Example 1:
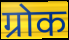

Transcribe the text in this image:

ग्रोक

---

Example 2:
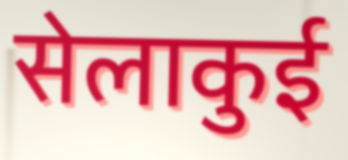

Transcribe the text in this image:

सेलाकुई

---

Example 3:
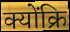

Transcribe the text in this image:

क्योंक्रि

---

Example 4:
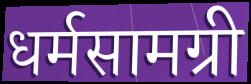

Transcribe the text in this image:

धर्मसामग्री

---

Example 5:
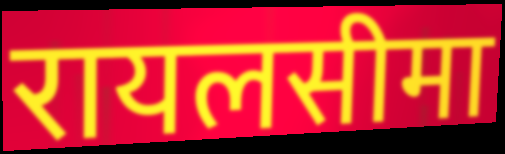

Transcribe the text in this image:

रायलसीमा